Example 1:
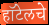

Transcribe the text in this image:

हॉटेलचे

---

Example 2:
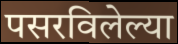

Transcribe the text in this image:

पसरविलेल्या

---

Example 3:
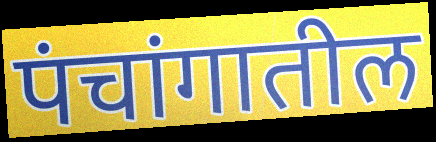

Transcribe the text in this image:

पंचांगातील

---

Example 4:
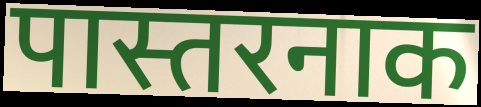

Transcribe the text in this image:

पास्तरनाक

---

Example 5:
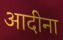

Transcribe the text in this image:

आदीना